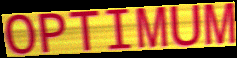
OPTIMUM